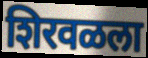
शिरवळला